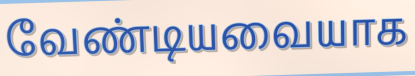
வேண்டியவையாக